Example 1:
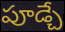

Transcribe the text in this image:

పూడ్చే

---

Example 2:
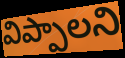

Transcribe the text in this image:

విప్పాలని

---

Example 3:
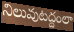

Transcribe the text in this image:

నిలువుటద్దంలా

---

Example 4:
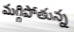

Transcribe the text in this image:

మగ్గిపోతున్న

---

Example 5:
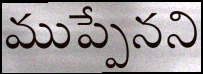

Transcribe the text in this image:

ముప్పేనని